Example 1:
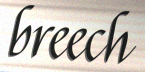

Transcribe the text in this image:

breech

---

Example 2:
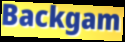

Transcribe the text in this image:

Backgam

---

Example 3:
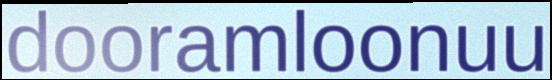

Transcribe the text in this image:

dooramloonuu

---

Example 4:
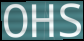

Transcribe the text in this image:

OHS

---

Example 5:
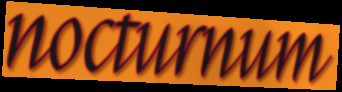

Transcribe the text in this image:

nocturnum